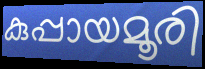
കുപ്പായമൂരി